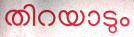
തിറയാടും